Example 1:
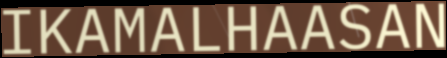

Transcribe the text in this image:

IKAMALHAASAN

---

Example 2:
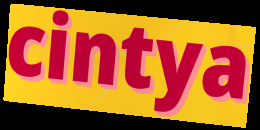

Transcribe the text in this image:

cintya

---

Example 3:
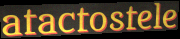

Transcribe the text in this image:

atactostele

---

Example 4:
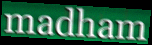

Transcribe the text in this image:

madham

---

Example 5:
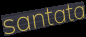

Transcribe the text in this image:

santata